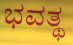
ಭವತ್ಥ